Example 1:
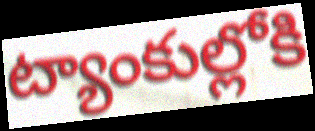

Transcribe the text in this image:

ట్యాంకుల్లోకి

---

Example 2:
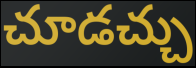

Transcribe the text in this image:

చూడచ్చు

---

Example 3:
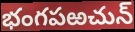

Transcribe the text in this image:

భంగపఱచున్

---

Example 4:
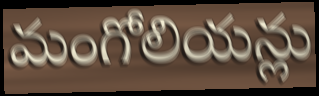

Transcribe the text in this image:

మంగోలియన్లు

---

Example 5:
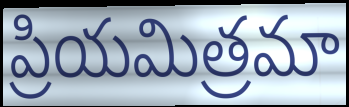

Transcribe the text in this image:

ప్రియమిత్రమా